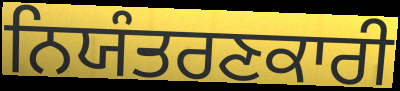
ਨਿਯੰਤਰਣਕਾਰੀ